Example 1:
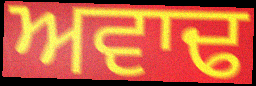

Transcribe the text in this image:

ਅਵਾਢ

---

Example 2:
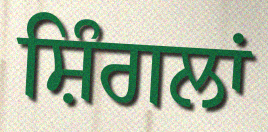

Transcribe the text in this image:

ਸ਼ਿੰਗਲਾਂ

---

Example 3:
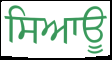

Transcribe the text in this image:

ਸਿਆਊ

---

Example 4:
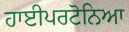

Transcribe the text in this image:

ਹਾਈਪਰਟੋਨਿਆ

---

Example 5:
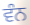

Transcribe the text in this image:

ਵੰਨ